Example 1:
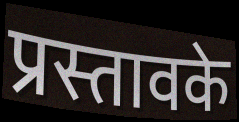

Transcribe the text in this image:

प्रस्तावके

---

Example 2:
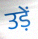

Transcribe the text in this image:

उड़ें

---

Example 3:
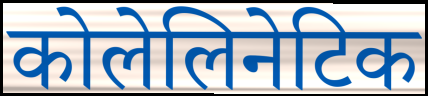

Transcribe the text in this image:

कोलेलिनेटिक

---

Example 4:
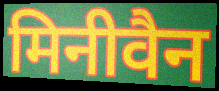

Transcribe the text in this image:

मिनीवैन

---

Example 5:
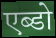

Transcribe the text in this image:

एब्डो